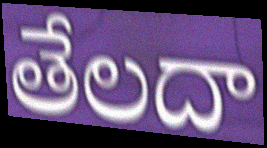
తేలదా